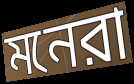
মনেরা